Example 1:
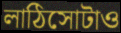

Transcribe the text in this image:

লাঠিসোটাও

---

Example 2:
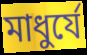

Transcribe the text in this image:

মাধুর্যে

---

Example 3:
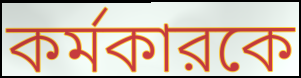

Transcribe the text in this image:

কর্মকারকে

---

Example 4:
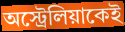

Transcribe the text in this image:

অস্ট্রেলিয়াকেই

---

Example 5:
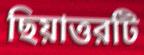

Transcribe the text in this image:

ছিয়াত্তরটি